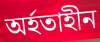
অৰ্হতাহীন